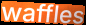
waffles